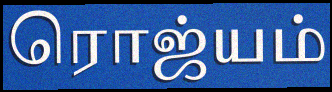
ரொஜ்யம்